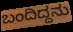
ಬಂದಿದ್ದನು